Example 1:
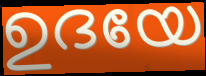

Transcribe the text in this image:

ഉദയേ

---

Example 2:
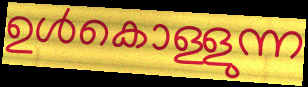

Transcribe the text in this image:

ഉൾകൊള്ളുന്ന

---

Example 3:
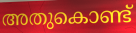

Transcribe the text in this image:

അതുകൊണ്ട്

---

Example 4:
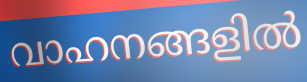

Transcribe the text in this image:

വാഹനങ്ങളിൽ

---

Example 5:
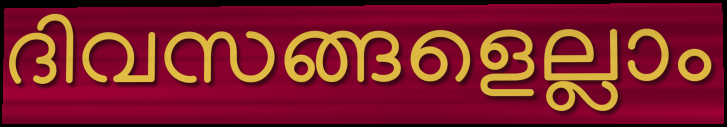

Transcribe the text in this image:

ദിവസങ്ങളെല്ലാം